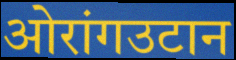
ओरांगउटान